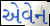
એવેન